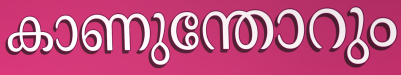
കാണുന്തോറും